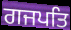
ਗਜਪਤਿ